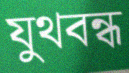
যুথবন্ধ